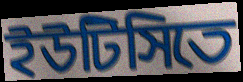
ইউটিসিতে